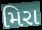
મિરા